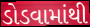
ડોડવામાંથી